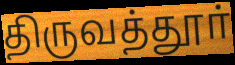
திருவத்தூர்